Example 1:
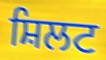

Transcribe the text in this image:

ਸ਼ਿਲਟ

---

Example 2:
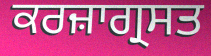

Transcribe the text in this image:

ਕਰਜ਼ਾਗ੍ਰਸਤ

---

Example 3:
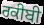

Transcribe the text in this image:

ਰਕੀਬੀ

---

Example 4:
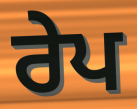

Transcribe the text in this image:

ਰੇਪ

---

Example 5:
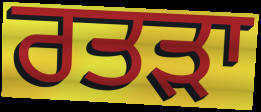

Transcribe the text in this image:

ਰਤੜਾ